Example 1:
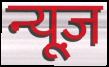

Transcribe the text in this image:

न्‍यूज़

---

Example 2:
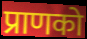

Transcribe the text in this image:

प्राणको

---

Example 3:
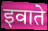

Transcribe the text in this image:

इवाते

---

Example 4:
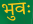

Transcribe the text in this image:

भुवः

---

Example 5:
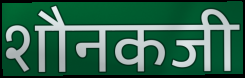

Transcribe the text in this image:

शौनकजी